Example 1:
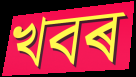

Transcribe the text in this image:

খবৰ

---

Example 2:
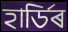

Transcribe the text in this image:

হাৰ্ডিৰ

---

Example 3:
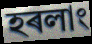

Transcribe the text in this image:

হৰলাং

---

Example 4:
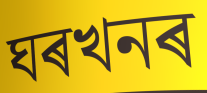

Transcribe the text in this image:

ঘৰখনৰ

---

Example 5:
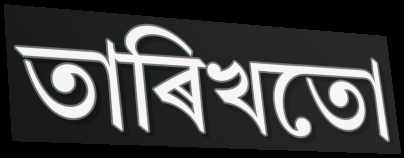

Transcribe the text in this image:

তাৰিখতো